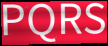
PQRS